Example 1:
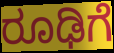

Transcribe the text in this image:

ರೂಢಿಗೆ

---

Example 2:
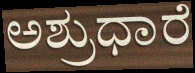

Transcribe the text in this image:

ಅಶ್ರುಧಾರೆ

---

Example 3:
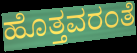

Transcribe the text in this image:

ಹೊತ್ತವರಂತೆ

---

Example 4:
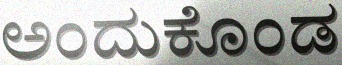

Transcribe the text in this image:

ಅಂದುಕೊಂಡ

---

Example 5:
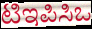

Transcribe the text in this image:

ಟಿಇಪಿಸಿಒ